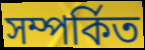
সম্পৰ্কিত